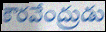
కౌరవేంద్రుడు